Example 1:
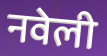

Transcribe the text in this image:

नवेली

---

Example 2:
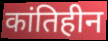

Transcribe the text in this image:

कांतिहीन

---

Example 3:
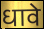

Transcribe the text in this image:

धावे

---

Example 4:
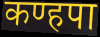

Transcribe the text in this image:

कण्हपा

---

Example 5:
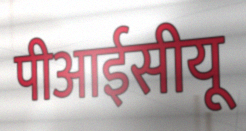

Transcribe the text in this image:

पीआईसीयू